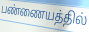
பண்ணையத்தில்